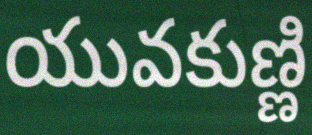
యువకుణ్ణి